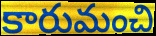
కారుమంచి